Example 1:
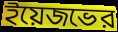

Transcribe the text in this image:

ইয়েজভের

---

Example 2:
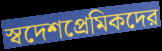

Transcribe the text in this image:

স্বদেশপ্রেমিকদের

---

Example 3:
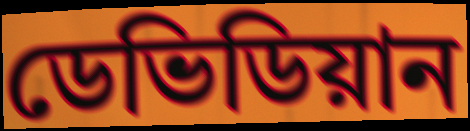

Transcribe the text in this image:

ডেভিডিয়ান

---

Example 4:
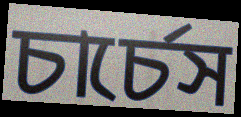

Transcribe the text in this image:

চার্চেস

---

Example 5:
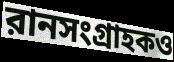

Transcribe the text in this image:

রানসংগ্রাহকও